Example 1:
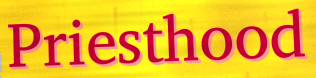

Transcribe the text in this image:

Priesthood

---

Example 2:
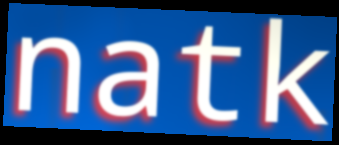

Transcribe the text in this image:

natk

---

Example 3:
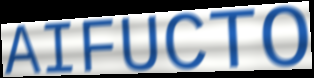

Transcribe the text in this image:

AIFUCTO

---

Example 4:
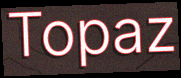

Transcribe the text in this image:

Topaz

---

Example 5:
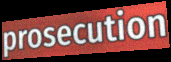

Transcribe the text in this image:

prosecution